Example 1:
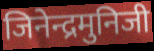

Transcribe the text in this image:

जिनेन्द्रमुनिजी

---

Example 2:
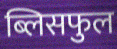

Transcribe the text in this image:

ब्लिसफुल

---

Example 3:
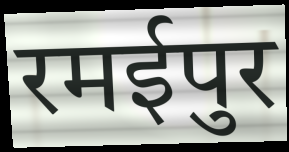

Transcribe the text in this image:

रमईपुर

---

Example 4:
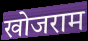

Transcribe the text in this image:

खोजराम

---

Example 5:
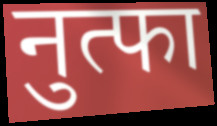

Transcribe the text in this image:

नुत्फा